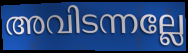
അവിടന്നല്ലേ